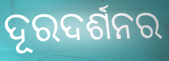
ଦୂରଦର୍ଶନର